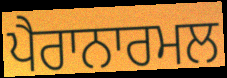
ਪੈਰਾਨਾਰਮਲ